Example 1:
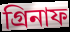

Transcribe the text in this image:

গ্রিনাফ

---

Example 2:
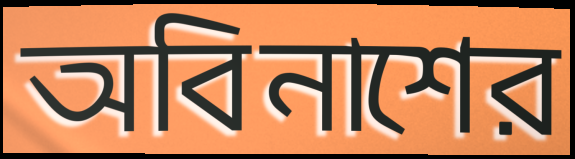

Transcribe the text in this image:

অবিনাশের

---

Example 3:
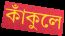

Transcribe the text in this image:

কাঁকুলে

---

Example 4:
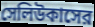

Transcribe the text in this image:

সেলিউকাসের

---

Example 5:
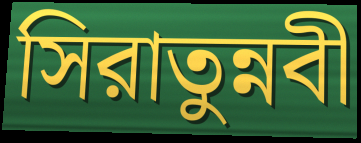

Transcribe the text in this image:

সিরাতুন্নবী